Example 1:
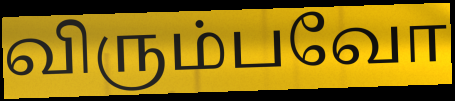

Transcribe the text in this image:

விரும்பவோ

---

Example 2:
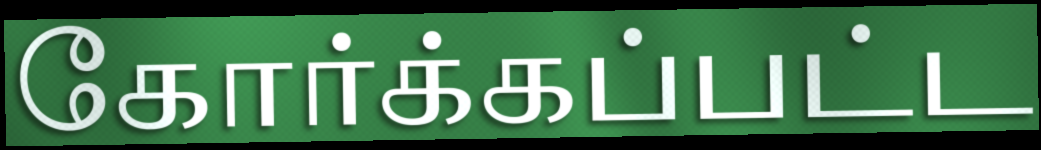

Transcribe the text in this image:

கோர்க்கப்பட்ட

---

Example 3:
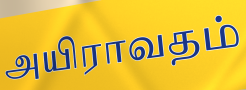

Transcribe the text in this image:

அயிராவதம்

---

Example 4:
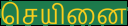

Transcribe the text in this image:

செயினை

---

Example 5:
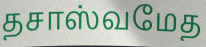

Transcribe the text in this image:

தசாஸ்வமேத